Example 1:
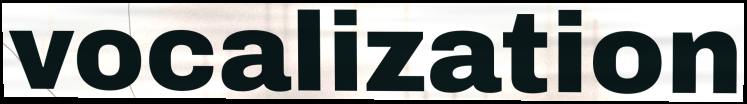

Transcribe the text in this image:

vocalization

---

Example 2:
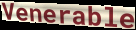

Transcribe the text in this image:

Venerable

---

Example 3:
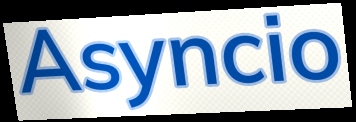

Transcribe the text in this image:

Asyncio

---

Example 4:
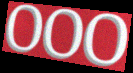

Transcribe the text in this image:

OOO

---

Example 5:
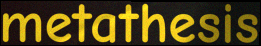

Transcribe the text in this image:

metathesis